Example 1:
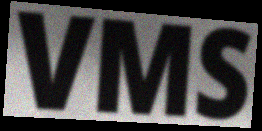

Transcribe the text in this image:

VMS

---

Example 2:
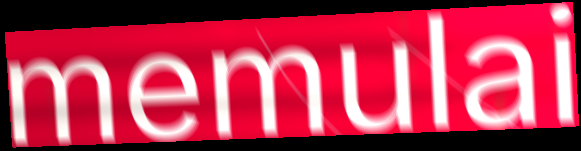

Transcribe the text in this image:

memulai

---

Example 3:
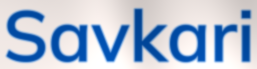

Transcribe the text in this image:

Savkari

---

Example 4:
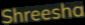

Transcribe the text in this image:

Shreesha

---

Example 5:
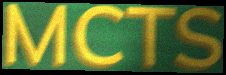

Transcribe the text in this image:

MCTS